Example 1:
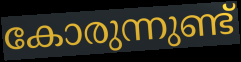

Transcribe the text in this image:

കോരുന്നുണ്ട്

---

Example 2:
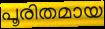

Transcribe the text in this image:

പൂരിതമായ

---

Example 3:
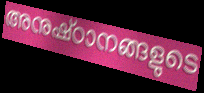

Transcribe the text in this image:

അനുഷ്‌ഠാനങ്ങളുടെ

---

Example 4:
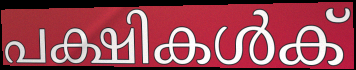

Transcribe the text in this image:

പക്ഷികൾക്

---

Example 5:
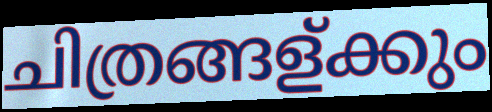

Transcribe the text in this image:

ചിത്രങ്ങള്ക്കും